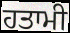
ਹਤਾਮੀ